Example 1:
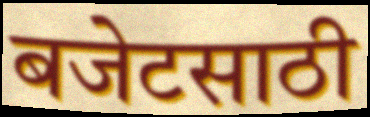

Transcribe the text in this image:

बजेटसाठी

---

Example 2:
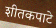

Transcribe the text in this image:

शीतकपाटे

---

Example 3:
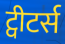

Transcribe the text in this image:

ट्वीटर्स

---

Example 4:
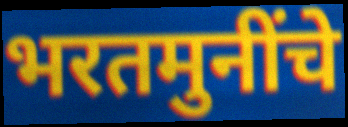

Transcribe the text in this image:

भरतमुनींचे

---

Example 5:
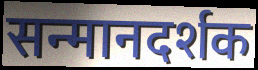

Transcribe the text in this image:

सन्मानदर्शक